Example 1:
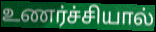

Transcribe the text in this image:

உணர்ச்சியால்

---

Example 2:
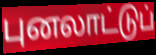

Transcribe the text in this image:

புனலாட்டுப்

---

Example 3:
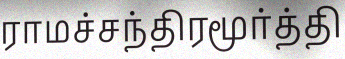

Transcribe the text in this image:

ராமச்சந்திரமூர்த்தி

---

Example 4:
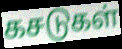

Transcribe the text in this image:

கசடுகள்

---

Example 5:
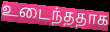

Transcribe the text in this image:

உடைந்ததாக